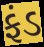
ફંડ